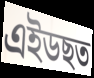
এইডছত